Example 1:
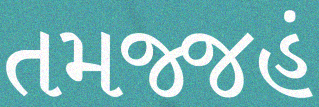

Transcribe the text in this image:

તમજ્જહં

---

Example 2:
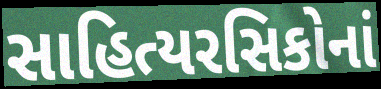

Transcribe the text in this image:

સાહિત્યરસિકોનાં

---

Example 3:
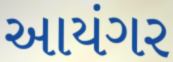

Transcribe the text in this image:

આયંગર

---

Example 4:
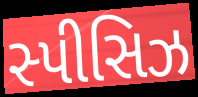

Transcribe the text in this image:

સ્પીસિઝ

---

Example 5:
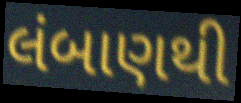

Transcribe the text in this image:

લંબાણથી